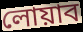
লোয়াব